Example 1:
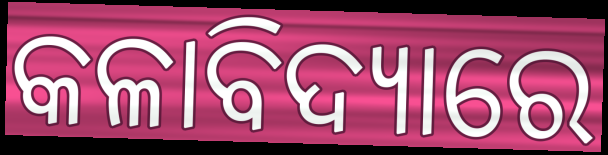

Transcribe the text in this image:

କଳାବିଦ୍ୟାରେ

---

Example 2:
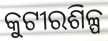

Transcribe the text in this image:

କୁଟୀରଶିଳ୍ପ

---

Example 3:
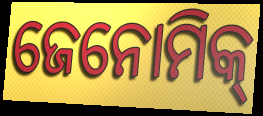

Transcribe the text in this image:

ଜେନୋମିକ୍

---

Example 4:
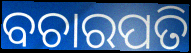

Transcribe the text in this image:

ବଚାରପତି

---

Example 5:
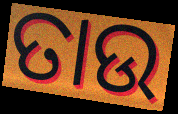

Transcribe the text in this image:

ତାଉ